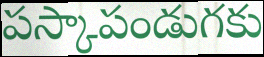
పస్కాపండుగకు